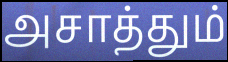
அசாத்தும்